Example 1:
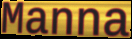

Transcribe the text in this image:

Manna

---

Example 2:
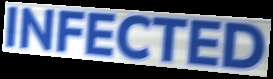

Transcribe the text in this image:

INFECTED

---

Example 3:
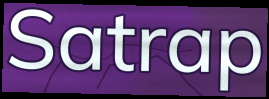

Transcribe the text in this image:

Satrap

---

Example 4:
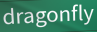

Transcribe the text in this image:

dragonfly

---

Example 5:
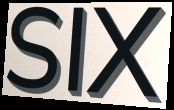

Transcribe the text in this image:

SIX